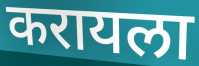
करायला